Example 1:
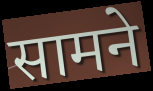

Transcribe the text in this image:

सामने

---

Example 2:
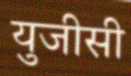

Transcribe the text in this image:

युजीसी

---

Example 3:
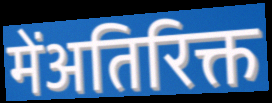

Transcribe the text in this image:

मेंअतिरिक्त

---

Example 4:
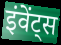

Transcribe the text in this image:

इंवेंट्स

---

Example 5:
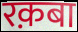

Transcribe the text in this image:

रक़बा